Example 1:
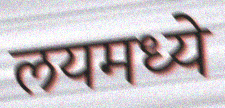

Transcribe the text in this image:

लयमध्ये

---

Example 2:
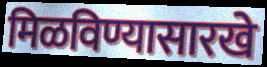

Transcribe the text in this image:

मिळविण्यासारखे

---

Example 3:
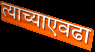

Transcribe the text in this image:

त्याच्याएवढा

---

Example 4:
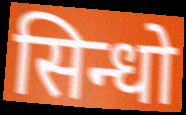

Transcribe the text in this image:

सिन्धो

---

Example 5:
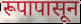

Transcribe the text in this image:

रूपापासून